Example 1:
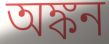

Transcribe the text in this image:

অঙ্কন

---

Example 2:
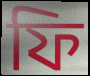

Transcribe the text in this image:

ফি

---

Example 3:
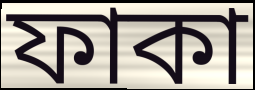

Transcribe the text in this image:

ফাকা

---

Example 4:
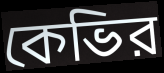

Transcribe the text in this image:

কেভির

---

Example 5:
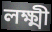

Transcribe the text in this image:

লক্ষ্মী